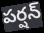
పర్షన్